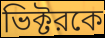
ভিক্টরকে